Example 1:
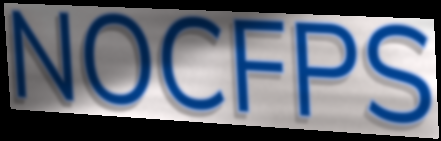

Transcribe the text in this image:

NOCFPS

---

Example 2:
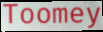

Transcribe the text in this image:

Toomey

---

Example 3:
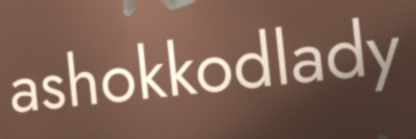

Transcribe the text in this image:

ashokkodlady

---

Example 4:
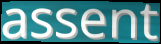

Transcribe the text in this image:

assent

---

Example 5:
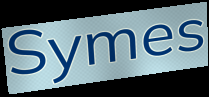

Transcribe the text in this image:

Symes